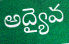
అద్యైవ